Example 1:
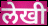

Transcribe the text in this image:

लेखी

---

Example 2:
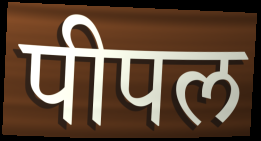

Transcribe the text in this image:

पीपल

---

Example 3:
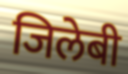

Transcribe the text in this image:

जिलेबी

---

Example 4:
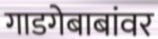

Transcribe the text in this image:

गाडगेबाबांवर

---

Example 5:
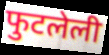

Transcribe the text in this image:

फुटलेली